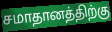
சமாதானத்திற்கு